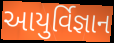
આયુર્વિજ્ઞાન